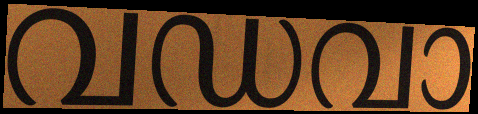
വഡവാ